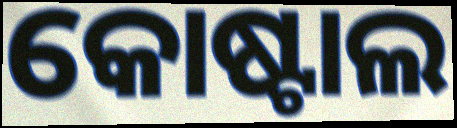
କୋଷ୍ଟାଲ